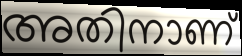
അതിനാണ്